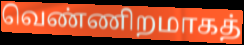
வெண்ணிறமாகத்